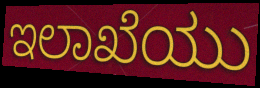
ಇಲಾಖೆಯು